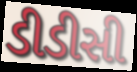
ડીડીસી